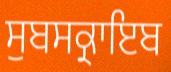
ਸੁਬਸਕ੍ਰਾਇਬ